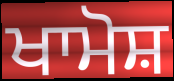
ਖਾਮੋਸ਼